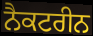
ਨੈਕਟਰੀਨ